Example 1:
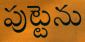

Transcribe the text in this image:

పుట్టెను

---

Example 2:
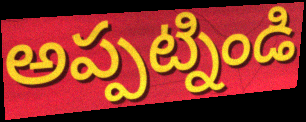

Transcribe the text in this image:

అప్పట్నిండి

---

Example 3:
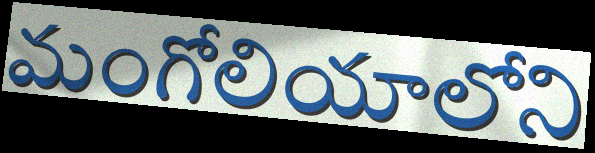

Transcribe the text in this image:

మంగోలియాలోని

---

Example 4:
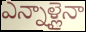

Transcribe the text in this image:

ఎన్నాళ్లైనా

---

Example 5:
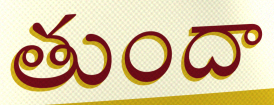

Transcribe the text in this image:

తుందా